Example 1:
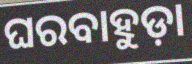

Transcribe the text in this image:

ଘରବାହୁଡ଼ା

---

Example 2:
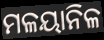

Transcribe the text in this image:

ମଳୟାନିଳ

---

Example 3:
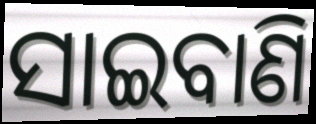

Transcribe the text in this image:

ସାଇବାଣି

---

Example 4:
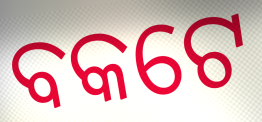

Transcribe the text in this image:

ବକଟେ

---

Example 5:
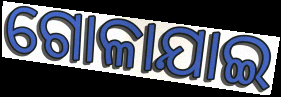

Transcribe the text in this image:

ଗୋଳାଯାଇ